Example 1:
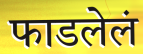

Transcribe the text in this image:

फाडलेलं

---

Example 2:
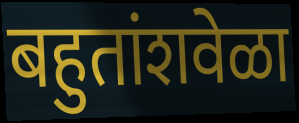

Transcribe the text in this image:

बहुतांशवेळा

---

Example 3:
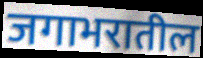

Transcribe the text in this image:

जगाभरातील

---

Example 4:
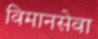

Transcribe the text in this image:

विमानसेवा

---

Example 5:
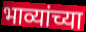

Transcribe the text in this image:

भाव्यांच्या